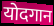
योदगान